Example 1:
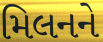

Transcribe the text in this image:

મિલનને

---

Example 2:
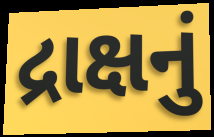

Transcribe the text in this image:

દ્રાક્ષનું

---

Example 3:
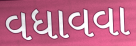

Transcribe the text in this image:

વધાવવા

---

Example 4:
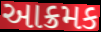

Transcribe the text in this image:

આક્રમક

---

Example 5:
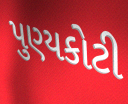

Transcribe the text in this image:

પુણ્યકોટી